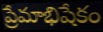
ప్రేమాభిషేకం